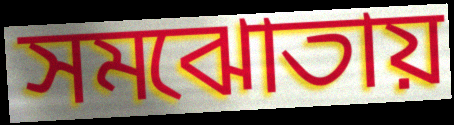
সমঝোতায়